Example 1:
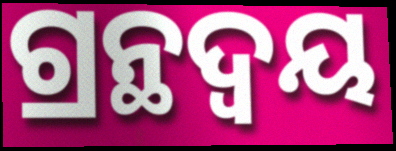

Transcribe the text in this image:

ଗ୍ରନ୍ଥଦ୍ଵୟ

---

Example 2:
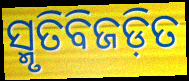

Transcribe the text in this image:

ସ୍ମୃତିବିଜଡ଼ିତ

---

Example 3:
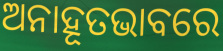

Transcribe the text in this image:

ଅନାହୂତଭାବରେ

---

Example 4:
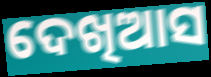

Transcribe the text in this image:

ଦେଖିଆସ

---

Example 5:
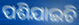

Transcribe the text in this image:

ପଶିଯାଇଚି